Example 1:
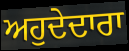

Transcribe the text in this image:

ਅਹੁਦੇਦਾਰਾ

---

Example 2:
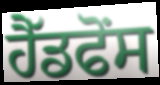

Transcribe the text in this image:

ਹੈੱਡਫੋਂਸ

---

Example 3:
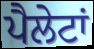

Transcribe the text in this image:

ਪੈਲੇਟਾਂ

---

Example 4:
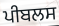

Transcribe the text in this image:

ਪੀਬਲਸ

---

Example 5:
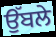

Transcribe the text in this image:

ਉੱਬਲੇ